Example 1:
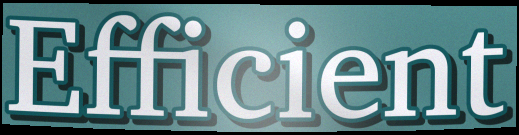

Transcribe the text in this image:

Efficient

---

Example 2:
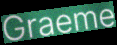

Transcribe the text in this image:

Graeme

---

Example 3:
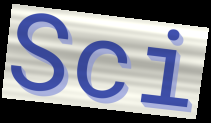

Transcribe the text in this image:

Sci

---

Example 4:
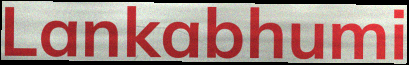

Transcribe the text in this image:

Lankabhumi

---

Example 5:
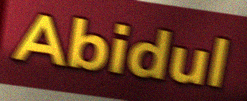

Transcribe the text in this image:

Abidul